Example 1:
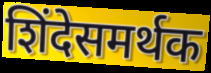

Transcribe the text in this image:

शिंदेसमर्थक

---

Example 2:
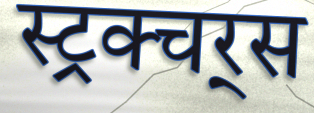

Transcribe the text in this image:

स्ट्रक्चर्स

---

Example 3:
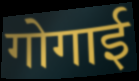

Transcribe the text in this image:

गोगाई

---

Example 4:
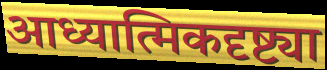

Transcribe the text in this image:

आध्यात्मिकदृष्ट्या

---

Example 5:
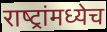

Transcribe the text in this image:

राष्ट्रांमध्येच